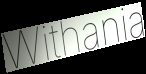
Withania